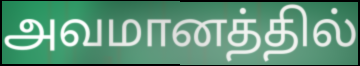
அவமானத்தில்